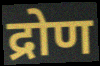
द्रोण